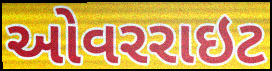
ઓવરરાઇટ